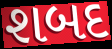
શબદ